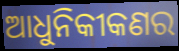
ଆଧୁନିକୀକଣର